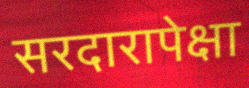
सरदारापेक्षा